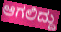
ಆಗಲಿದ್ದು